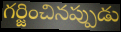
గర్జించినప్పుడు